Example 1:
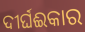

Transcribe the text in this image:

ଦୀର୍ଘଈକାର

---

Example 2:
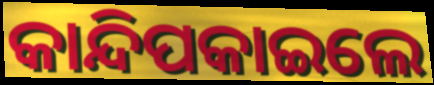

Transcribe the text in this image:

କାନ୍ଦିପକାଇଲେ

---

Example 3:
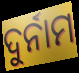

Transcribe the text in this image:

ଦୁର୍ନାମ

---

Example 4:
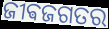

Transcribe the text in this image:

ଜୀଵଜଗତର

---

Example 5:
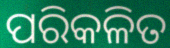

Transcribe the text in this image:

ପରିକଳିତ